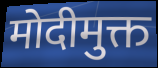
मोदीमुक्त